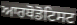
ਆਰਥੋਡੋਟਿਸਟ